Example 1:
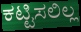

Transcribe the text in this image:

ಕಟ್ಟಿಸಲಿಲ್ಲ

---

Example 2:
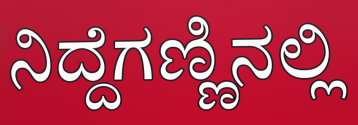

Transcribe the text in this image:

ನಿದ್ದೆಗಣ್ಣಿನಲ್ಲಿ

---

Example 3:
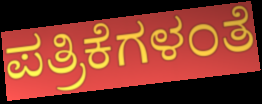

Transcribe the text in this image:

ಪತ್ರಿಕೆಗಳಂತೆ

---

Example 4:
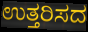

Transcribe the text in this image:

ಉತ್ತರಿಸದ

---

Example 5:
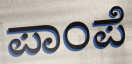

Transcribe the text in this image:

ಪಾಂಪೆ